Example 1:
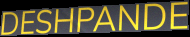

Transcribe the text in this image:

DESHPANDE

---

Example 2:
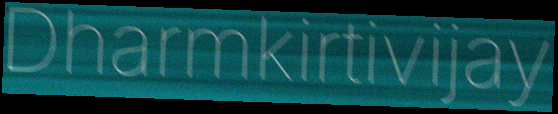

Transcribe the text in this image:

Dharmkirtivijay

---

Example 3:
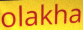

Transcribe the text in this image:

olakha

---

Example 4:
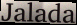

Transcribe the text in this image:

Jalada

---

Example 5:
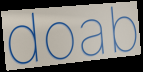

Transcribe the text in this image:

doab